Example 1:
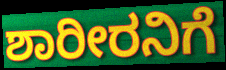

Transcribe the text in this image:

ಶಾರೀರನಿಗೆ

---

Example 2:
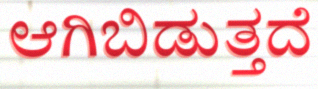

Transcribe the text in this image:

ಆಗಿಬಿಡುತ್ತದೆ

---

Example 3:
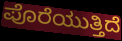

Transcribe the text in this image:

ಪೊರೆಯುತ್ತಿದೆ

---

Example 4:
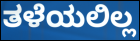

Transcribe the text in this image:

ತಳೆಯಲಿಲ್ಲ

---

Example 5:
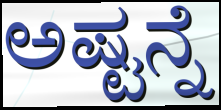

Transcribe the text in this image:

ಅಷ್ಟನ್ನೆ